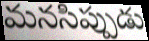
మనసిప్పుడు